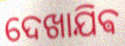
ଦେଖାଯିଵ